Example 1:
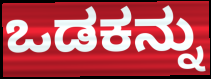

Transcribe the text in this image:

ಒಡಕನ್ನು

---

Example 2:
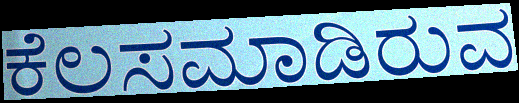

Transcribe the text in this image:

ಕೆಲಸಮಾಡಿರುವ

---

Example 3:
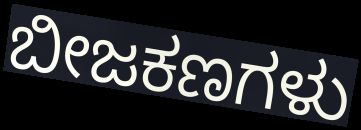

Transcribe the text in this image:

ಬೀಜಕಣಗಳು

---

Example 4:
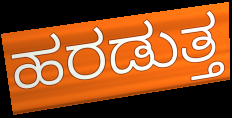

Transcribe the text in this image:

ಹರಡುತ್ತ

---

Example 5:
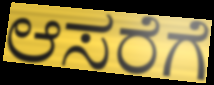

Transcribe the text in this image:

ಆಸರೆಗೆ